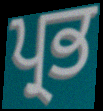
ਪ੍ਰਭ